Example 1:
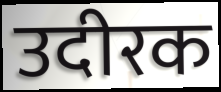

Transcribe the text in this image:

उदीरक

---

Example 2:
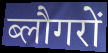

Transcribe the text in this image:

ब्लौगरों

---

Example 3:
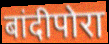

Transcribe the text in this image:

बांदीपोरा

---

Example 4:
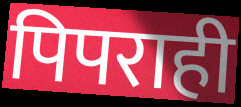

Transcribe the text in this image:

पिपराही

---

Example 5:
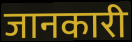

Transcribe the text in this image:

जानकारी